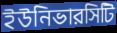
ইউনিভারসিটি